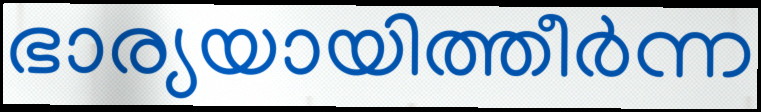
ഭാര്യയായിത്തീർന്ന